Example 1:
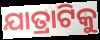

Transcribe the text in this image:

ଯାତ୍ରାଟିକୁ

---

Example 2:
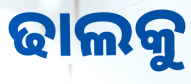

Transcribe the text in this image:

ଢାଲକୁ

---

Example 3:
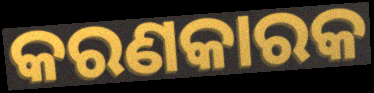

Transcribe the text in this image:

କରଣକାରକ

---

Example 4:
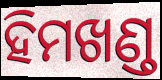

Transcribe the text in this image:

ହିମଖଣ୍ଡ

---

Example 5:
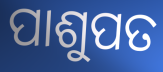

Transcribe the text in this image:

ପାଶୁପତ